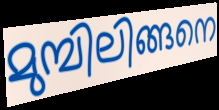
മുമ്പിലിങ്ങനെ